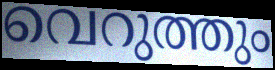
വെറുത്തും